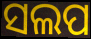
ସଲପ